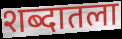
शब्दातला